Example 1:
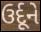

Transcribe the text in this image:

ઉર્દૂને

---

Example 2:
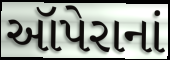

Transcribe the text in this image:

ઑપેરાનાં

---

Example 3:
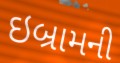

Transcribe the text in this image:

ઇબ્રામની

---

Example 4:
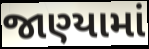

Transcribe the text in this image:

જાણ્યામાં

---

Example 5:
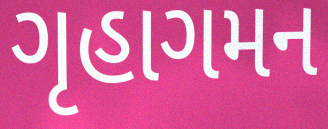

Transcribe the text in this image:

ગૃહાગમન